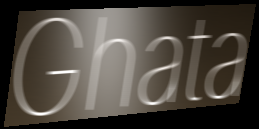
Ghata